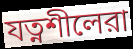
যত্নশীলেরা